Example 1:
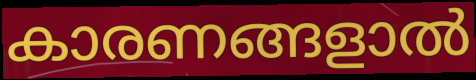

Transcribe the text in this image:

കാരണങ്ങളാൽ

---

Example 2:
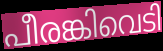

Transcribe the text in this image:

പീരങ്കിവെടി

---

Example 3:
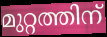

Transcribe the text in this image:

മുറ്റത്തിന്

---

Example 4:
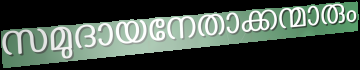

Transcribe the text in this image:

സമുദായനേതാക്കന്മാരും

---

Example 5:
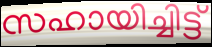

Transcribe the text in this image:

സഹായിച്ചിട്ട്